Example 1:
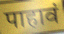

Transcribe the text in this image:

पाहावं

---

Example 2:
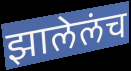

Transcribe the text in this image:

झालेलंच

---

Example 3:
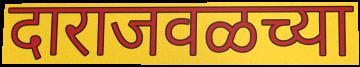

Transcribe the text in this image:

दाराजवळच्या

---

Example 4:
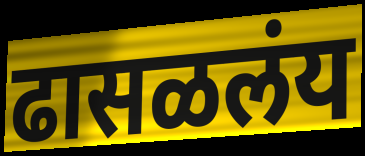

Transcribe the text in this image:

ढासळलंय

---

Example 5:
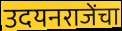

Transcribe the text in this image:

उदयनराजेंचा